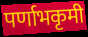
पर्णाभकृमी